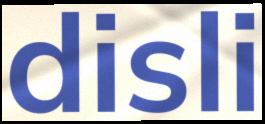
disli